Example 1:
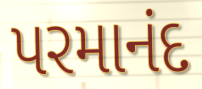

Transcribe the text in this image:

પરમાનંદ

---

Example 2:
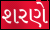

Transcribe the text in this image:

શરણે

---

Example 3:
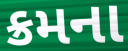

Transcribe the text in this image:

ક્રમના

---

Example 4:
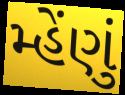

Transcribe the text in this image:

મ્હેંણું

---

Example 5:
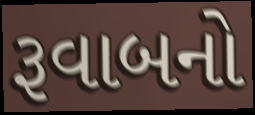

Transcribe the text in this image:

રૂવાબનો